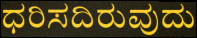
ಧರಿಸದಿರುವುದು